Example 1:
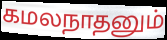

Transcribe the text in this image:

கமலநாதனும்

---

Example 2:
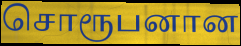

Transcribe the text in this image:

சொரூபனான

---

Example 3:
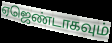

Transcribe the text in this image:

ஏஜெண்டாகவும்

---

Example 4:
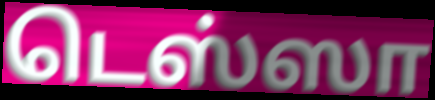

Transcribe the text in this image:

டெஸ்ஸா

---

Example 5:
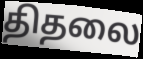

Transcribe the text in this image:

திதலை